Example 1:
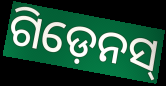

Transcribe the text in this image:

ଗିଡ଼େନସ୍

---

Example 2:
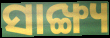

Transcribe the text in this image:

ସାଙ୍ଖ୍ୟ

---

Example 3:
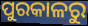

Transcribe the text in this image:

ପୁରକାଳରୁ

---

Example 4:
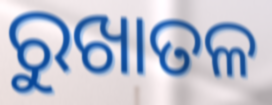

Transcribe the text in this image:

ରୁଖାତଳ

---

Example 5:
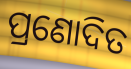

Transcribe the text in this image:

ପ୍ରଣୋଦିତ